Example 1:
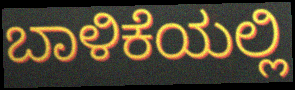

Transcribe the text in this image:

ಬಾಳಿಕೆಯಲ್ಲಿ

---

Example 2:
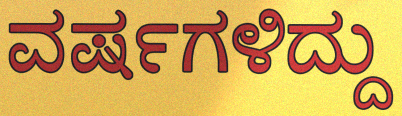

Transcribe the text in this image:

ವರ್ಷಗಳಿದ್ದು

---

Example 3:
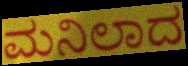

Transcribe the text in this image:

ಮನಿಲಾದ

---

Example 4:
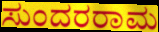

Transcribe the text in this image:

ಸುಂದರರಾಮ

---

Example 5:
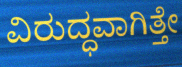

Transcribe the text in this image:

ವಿರುದ್ಧವಾಗಿತ್ತೇ